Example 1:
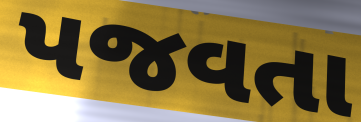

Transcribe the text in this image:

પજવતા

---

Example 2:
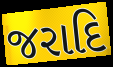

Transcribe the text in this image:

જરાદિ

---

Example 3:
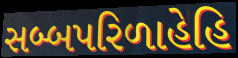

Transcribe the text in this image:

સબ્બપરિળાહેહિ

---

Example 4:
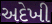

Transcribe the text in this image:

અદેખી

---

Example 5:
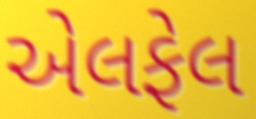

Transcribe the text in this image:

એલફેલ